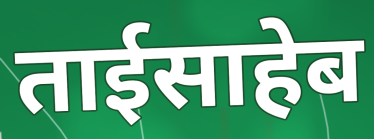
ताईसाहेब